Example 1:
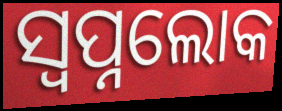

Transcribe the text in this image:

ସ୍ଵପ୍ନଲୋକ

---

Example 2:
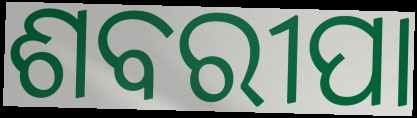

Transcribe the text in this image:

ଶବରୀପା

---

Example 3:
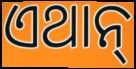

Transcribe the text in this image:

ଏଥାନ୍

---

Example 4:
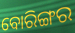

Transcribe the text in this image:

ବୋରିଙ୍ଗର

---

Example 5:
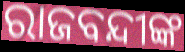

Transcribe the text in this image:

ରାଜବନ୍ଦୀଙ୍କ